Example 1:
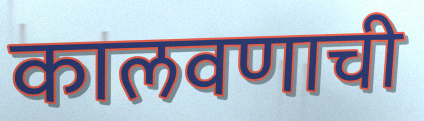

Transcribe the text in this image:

कालवणाची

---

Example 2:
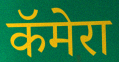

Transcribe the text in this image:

कॅमेरा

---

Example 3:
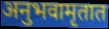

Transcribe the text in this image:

अनुभवामृतात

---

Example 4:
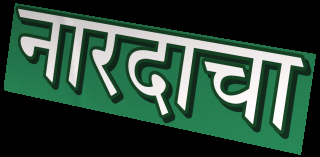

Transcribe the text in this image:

नारदाचा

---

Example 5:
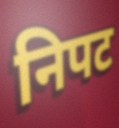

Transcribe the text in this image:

निपट